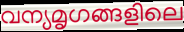
വന്യമൃഗങ്ങളിലെ